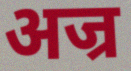
अज्र